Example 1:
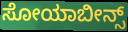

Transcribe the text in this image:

ಸೋಯಾಬೀನ್ಸ್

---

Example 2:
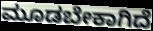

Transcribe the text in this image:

ಮೂಡಬೇಕಾಗಿದೆ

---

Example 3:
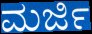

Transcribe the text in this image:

ಮರ್ಜಿ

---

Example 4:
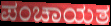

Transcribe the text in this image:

ಪಂಚಾಯತ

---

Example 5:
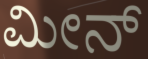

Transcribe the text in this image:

ಮೀನ್